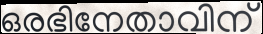
ഒരഭിനേതാവിന്